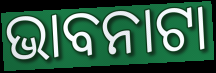
ଭାବନାଟା